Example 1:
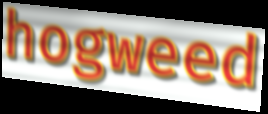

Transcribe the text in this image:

hogweed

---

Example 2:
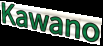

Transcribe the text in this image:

Kawano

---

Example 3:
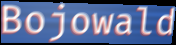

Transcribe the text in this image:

Bojowald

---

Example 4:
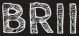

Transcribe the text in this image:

BRII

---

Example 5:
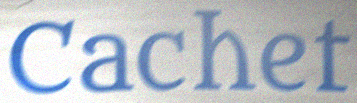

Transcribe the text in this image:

Cachet